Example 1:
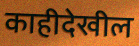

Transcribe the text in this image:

काहीदेखील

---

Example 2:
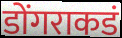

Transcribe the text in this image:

डोंगराकडं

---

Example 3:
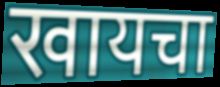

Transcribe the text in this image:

खायचा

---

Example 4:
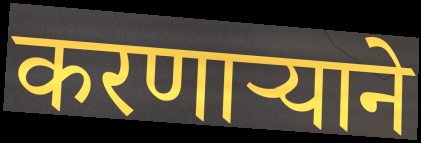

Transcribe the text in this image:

करणाऱ्याने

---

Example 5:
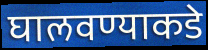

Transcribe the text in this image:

घालवण्याकडे